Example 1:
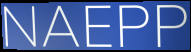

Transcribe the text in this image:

NAEPP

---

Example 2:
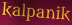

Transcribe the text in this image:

kalpanik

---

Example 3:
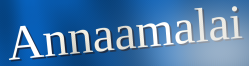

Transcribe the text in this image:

Annaamalai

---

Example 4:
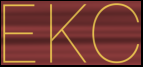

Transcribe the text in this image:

EKC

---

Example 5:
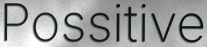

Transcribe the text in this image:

Possitive